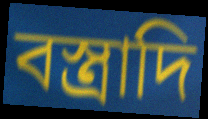
বস্ত্রাদি